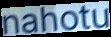
nahotu